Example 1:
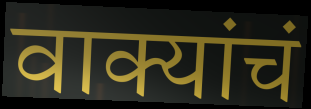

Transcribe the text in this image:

वाक्यांचं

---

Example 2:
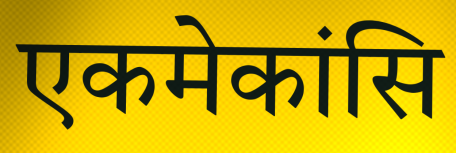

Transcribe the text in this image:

एकमेकांसि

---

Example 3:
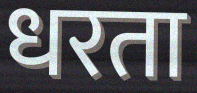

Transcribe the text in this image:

धरता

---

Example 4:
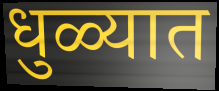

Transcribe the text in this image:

धुळ्यात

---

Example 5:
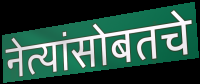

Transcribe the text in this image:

नेत्यांसोबतचे